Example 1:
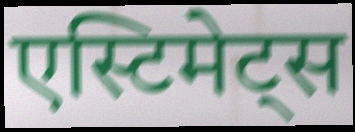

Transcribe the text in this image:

एस्टिमेट्स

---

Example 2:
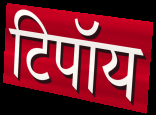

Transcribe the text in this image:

टिपॉय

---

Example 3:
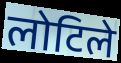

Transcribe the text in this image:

लोटिले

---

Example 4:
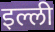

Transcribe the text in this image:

इल्ली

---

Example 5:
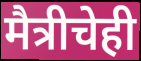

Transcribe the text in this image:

मैत्रीचेही